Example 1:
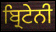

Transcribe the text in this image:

ਬ੍ਰਿਟੇਨੀ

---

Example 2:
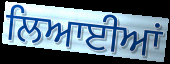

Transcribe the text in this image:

ਲਿਆਈਆਂ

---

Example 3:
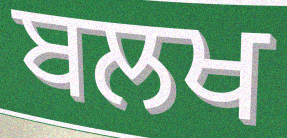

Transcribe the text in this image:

ਬਲਖ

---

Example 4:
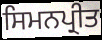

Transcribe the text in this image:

ਸਿਮਨਪ੍ਰੀਤ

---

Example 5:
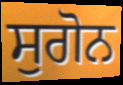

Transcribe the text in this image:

ਸੁਗੋਨ